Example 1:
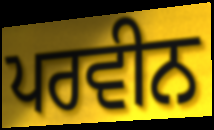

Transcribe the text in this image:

ਪਰਵੀਨ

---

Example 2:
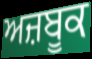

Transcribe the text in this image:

ਅਜ਼ਬੂਕ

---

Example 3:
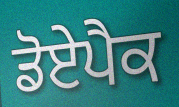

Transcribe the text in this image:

ਡੋਏਪੈਕ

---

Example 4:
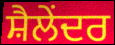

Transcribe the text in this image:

ਸ਼ੈਲੇਂਦਰ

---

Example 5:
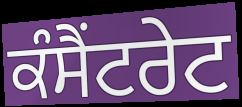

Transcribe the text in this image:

ਕੰਸੈਂਟਰੇਟ